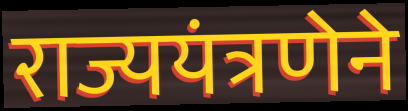
राज्ययंत्रणेने